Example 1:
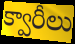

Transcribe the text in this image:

క్వారీలు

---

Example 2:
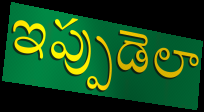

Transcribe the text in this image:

ఇప్పుడెలా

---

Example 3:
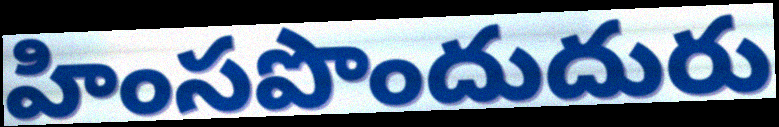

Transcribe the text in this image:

హింసపొందుదురు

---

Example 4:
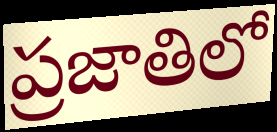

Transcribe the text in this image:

ప్రజాతిలో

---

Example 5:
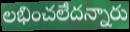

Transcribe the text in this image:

లభించలేదన్నారు